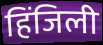
हिंजिली